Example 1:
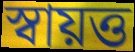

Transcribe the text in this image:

স্বায়ত্ত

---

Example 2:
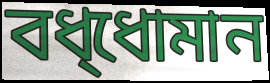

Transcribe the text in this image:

বধ্ধোমান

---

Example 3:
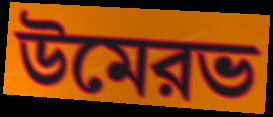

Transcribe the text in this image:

উমেরভ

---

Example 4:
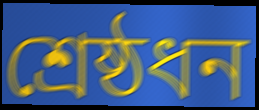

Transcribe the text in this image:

শ্রেষ্ঠধন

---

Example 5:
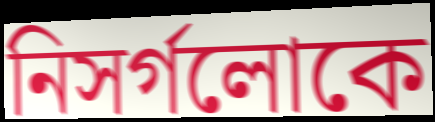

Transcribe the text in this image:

নিসর্গলোকে